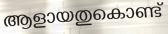
ആളായതുകൊണ്ട്